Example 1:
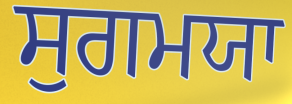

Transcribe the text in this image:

ਸੁਗਮਯਾ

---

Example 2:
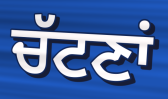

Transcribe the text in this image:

ਚੱਟਣਾਂ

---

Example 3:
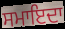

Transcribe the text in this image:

ਸਮਾਇਦਾ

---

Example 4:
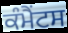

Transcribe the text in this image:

ਕੰਮੈਂਟਸ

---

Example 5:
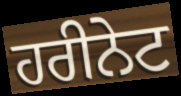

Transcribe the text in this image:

ਹਰੀਨੇਟ